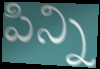
పిన్ని